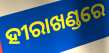
ହୀରାଖଣ୍ଡରେ